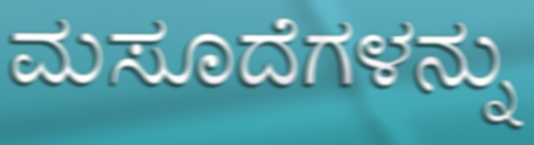
ಮಸೂದೆಗಳನ್ನು